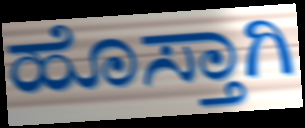
ಹೊಸ್ತಾಗಿ